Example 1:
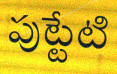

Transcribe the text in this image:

పుట్టేటి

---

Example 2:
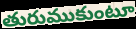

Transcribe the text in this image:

తురుముకుంటూ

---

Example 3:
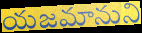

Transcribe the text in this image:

యజమానుని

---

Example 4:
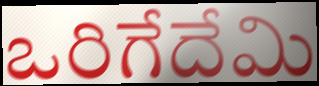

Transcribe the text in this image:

ఒరిగేదేమి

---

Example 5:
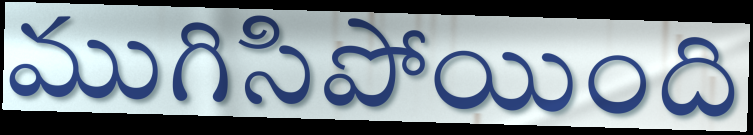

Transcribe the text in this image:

ముగిసిపోయింది